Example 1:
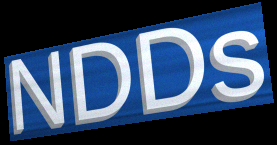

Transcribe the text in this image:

NDDs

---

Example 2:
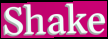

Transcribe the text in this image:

Shake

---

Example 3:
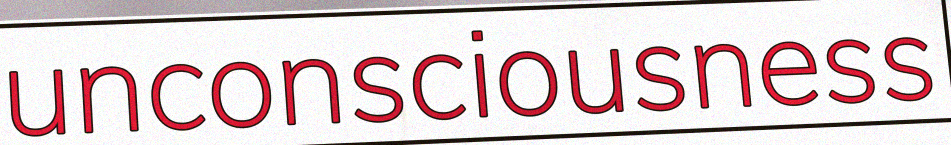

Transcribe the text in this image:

unconsciousness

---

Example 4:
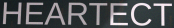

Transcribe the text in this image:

HEARTECT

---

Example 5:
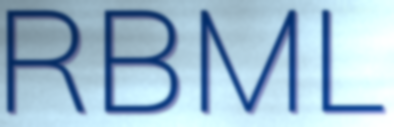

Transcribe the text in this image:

RBML